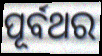
ପୂର୍ବଥର